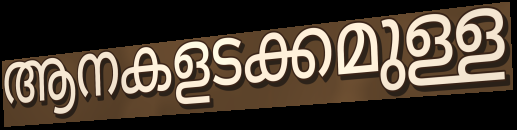
ആനകളടക്കമുള്ള